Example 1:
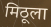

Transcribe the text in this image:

मिठूला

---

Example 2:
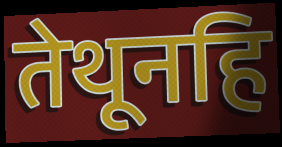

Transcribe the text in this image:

तेथूनहि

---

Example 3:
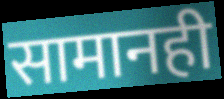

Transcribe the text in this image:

सामानही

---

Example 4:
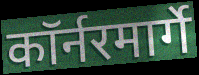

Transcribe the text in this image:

कॉर्नरमार्गे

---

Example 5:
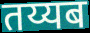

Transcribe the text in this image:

तय्यब